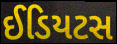
ઈડિયટસ